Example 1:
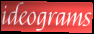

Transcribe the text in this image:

ideograms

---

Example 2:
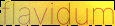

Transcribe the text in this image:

flavidum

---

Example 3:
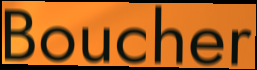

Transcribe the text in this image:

Boucher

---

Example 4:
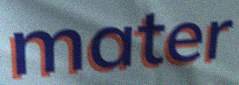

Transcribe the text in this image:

mater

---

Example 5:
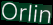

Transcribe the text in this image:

Orlin